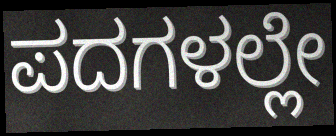
ಪದಗಳಲ್ಲೇ